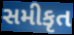
સમીકૃત